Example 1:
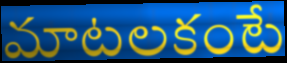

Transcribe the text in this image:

మాటలకంటే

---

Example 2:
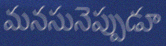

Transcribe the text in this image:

మనసునెప్పుడూ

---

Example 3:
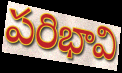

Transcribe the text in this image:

పరిభావి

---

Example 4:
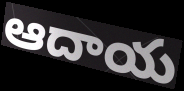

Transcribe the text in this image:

ఆదాయ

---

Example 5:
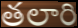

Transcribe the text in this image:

తలారి